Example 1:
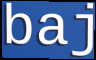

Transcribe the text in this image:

baj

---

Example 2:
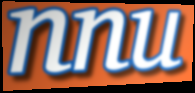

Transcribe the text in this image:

nnu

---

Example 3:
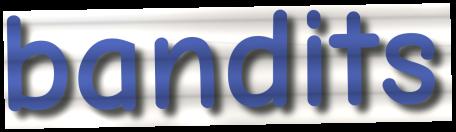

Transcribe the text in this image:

bandits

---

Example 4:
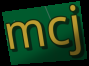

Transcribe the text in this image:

mcj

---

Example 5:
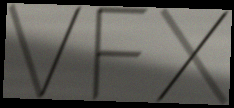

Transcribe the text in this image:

VFX